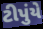
ટીપુંયે